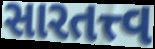
સારતત્ત્વ